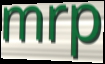
mrp